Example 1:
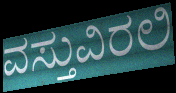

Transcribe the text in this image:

ವಸ್ತುವಿರಲಿ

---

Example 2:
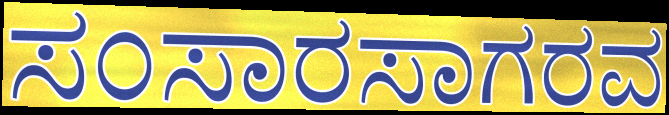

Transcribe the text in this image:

ಸಂಸಾರಸಾಗರವ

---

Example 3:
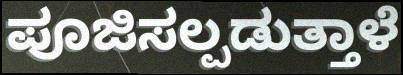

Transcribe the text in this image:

ಪೂಜಿಸಲ್ಪಡುತ್ತಾಳೆ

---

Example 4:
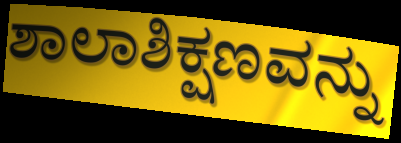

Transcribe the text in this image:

ಶಾಲಾಶಿಕ್ಷಣವನ್ನು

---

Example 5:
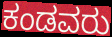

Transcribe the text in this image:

ಕಂಡವರು